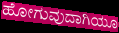
ಹೋಗುವುದಾಗಿಯೂ